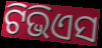
ଟିଭିଏସ